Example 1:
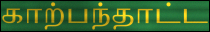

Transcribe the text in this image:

காற்பந்தாட்ட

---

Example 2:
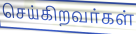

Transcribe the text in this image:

செய்கிறவர்கள்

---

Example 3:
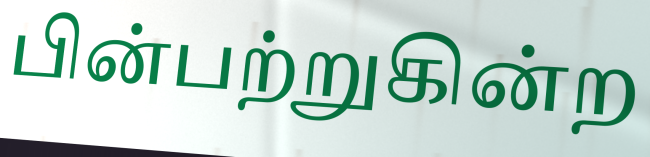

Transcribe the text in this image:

பின்பற்றுகின்ற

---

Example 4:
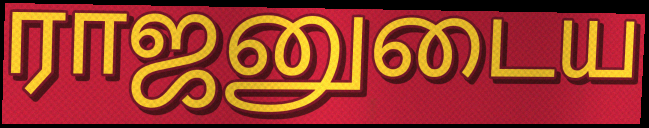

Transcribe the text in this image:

ராஜனுடைய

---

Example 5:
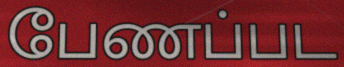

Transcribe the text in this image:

பேணப்பட